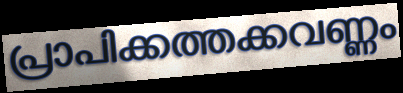
പ്രാപിക്കത്തക്കവണ്ണം